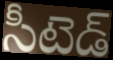
సీటెడ్